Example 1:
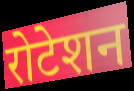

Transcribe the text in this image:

रोटेशन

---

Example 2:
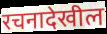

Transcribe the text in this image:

रचनादेखील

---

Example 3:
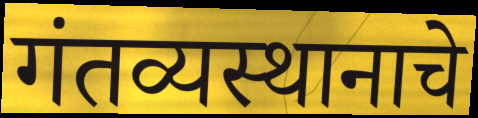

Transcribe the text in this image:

गंतव्यस्थानाचे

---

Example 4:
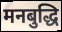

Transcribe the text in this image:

मनबुद्धि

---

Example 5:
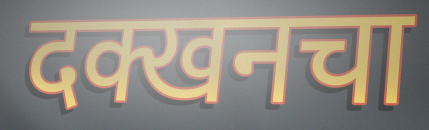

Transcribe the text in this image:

दक्खनचा